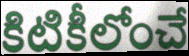
కిటికీలోంచే